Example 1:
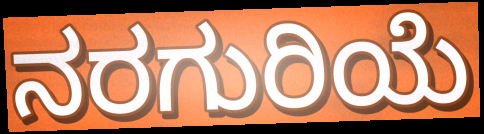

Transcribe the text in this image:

ನರಗುರಿಯೆ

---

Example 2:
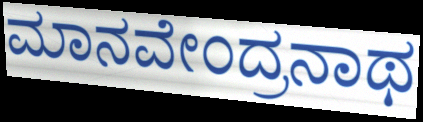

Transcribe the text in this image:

ಮಾನವೇಂದ್ರನಾಥ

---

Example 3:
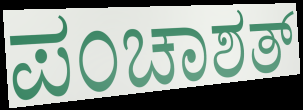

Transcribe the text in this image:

ಪಂಚಾಶತ್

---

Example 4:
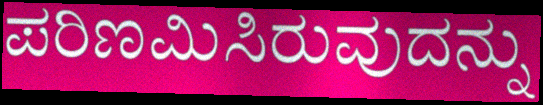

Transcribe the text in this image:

ಪರಿಣಮಿಸಿರುವುದನ್ನು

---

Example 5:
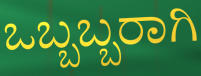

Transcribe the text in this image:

ಒಬ್ಬಬ್ಬರಾಗಿ